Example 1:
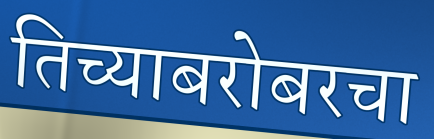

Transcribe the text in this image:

तिच्याबरोबरचा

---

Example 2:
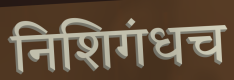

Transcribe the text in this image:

निशिगंधच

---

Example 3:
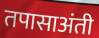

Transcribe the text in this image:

तपासाअंती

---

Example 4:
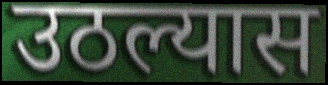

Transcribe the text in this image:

उठल्यास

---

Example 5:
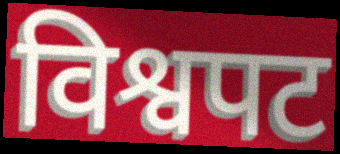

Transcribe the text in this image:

विश्वपट